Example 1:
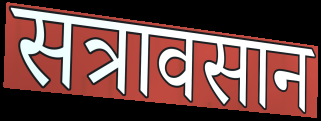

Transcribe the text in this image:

सत्रावसान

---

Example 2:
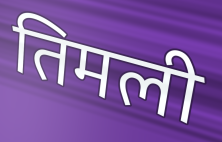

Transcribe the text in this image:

तिमली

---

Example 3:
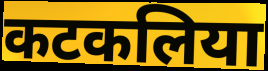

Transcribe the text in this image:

कटकलिया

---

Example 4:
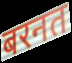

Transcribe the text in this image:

बरनत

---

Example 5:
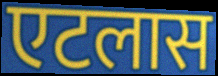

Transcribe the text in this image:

एटलास